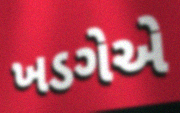
ખડગેએ